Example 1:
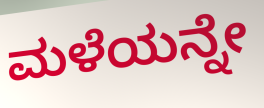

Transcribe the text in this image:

ಮಳೆಯನ್ನೇ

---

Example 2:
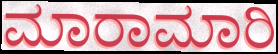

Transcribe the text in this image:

ಮಾರಾಮಾರಿ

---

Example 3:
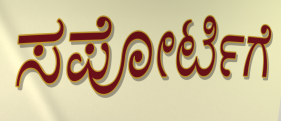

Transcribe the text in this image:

ಸಪೋರ್ಟಿಗೆ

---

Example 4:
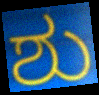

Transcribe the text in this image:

ಶು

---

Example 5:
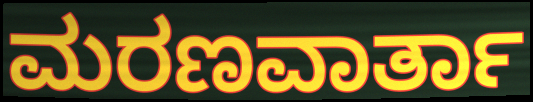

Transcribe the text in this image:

ಮರಣವಾರ್ತಾ